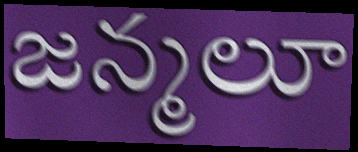
జన్మలూ